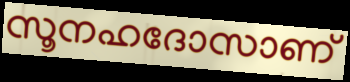
സൂനഹദോസാണ്